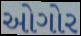
ઓગોર